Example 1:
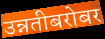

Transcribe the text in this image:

उन्नतीबरोबर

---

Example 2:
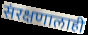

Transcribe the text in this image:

संरक्षणालाही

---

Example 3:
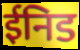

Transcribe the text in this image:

ईनिड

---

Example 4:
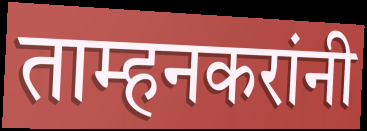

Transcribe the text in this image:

ताम्हनकरांनी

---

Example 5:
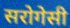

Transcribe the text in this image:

सरोगेसी